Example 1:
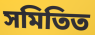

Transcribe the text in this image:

সমিতিত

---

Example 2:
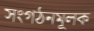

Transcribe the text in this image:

সংগঠনমূলক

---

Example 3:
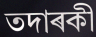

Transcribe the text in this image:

তদাৰকী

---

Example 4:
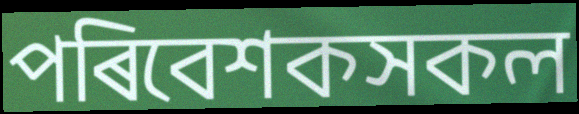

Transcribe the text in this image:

পৰিবেশকসকল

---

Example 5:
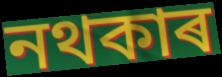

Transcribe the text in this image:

নথকাৰ